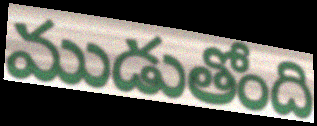
ముడుతోంది